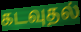
கடவுதல்